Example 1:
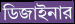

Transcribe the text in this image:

ডিজাইনার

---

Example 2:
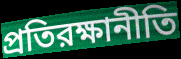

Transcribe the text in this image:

প্রতিরক্ষানীতি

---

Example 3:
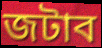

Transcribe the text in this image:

জটাব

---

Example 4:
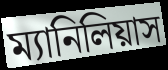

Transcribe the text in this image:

ম্যানিলিয়াস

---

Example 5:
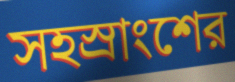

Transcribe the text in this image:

সহস্রাংশের